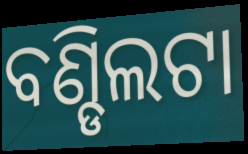
ବଣ୍ଡିଲଟା